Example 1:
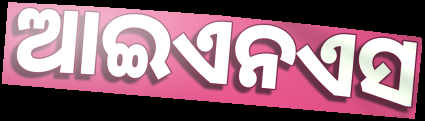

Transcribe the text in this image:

ଆଇଏନଏସ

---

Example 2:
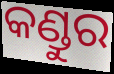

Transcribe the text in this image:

କଣ୍ଡୁର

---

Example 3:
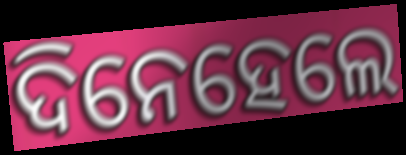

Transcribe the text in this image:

ଦିନେହେଲେ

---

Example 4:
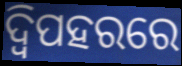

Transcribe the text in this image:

ଦ୍ୱିପହରରେ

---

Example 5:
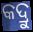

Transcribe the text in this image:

କଦ୍ରୁ